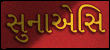
સુનાએસિ